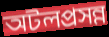
অটলপ্রসন্ন